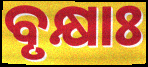
ବୃକ୍ଷାଃ